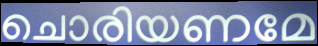
ചൊരിയണമേ